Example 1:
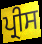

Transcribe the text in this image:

ਪ੍ਰੀਸ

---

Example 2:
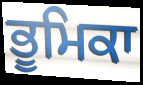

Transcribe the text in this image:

ਭੂਮਿਕਾ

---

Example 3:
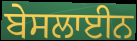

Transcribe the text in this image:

ਬੇਸਲਾਈਨ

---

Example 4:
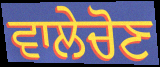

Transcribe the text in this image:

ਵਾਲੇਚੋਣ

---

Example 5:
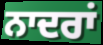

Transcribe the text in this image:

ਨਾਦਰਾਂ